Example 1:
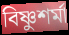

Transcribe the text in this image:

বিষ্ণুশর্মা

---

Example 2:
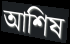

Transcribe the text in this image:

আশিষ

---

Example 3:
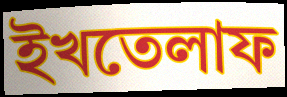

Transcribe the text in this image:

ইখতেলাফ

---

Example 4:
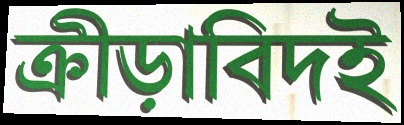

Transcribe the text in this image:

ক্রীড়াবিদই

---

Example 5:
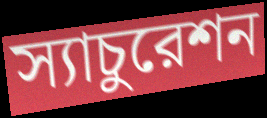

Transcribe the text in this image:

স্যাচুরেশন